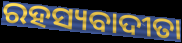
ରହସ୍ୟବାଦୀତା